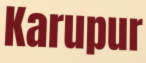
Karupur